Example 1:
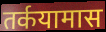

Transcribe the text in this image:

तर्कयामास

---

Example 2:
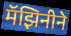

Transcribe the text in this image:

मॅझिनीने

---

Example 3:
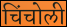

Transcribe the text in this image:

चिंचोली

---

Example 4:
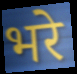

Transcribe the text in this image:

भरे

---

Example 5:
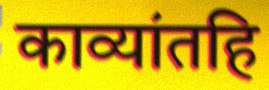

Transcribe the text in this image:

काव्यांतहि